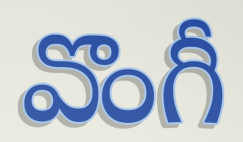
వొంగీ